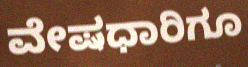
ವೇಷಧಾರಿಗೂ